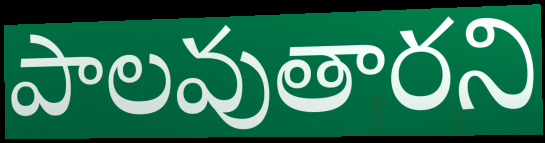
పాలవుతారని